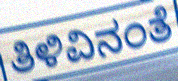
ತಿಳಿವಿನಂತೆ